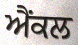
ਐਂਕਲ